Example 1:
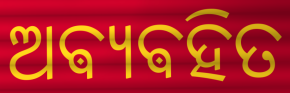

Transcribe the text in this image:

ଅଵ୍ୟଵହିତ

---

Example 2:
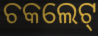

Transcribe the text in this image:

ଚକଲେଟ୍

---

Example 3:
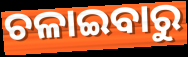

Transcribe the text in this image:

ଚଳାଇବାରୁ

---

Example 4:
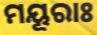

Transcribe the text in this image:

ମୟୂରାଃ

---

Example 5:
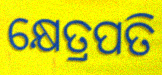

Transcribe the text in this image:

କ୍ଷେତ୍ରପତି